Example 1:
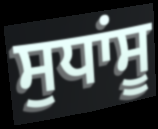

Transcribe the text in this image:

ਸੁਧਾਂਸੂ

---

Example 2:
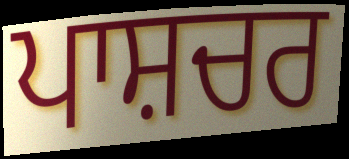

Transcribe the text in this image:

ਪਾਸ਼ਚਰ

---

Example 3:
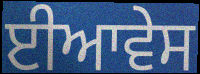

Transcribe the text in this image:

ਈਆਵੇਸ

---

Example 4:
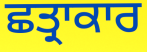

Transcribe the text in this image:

ਛਤ੍ਰਾਕਾਰ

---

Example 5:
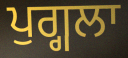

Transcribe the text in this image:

ਪੁਗ੍ਗਲਾ